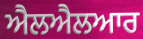
ਐਲਐਲਆਰ